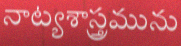
నాట్యశాస్త్రమును